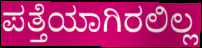
ಪತ್ತೆಯಾಗಿರಲಿಲ್ಲ